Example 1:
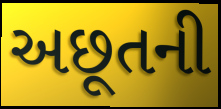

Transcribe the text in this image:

અછૂતની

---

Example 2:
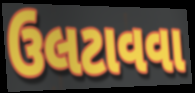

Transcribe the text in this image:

ઉલટાવવા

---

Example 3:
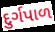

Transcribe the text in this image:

દુર્ગપાળ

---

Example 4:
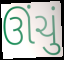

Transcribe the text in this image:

ઊંચું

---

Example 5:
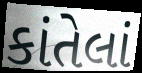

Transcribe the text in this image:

કાંતેલાં